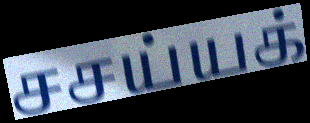
சசய்யக்